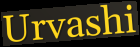
Urvashi